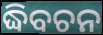
ଦ୍ଧିବଚନ